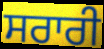
ਸਰਾਰੀ